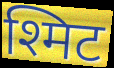
श्मिट